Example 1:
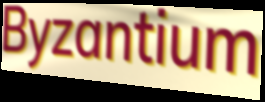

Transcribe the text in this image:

Byzantium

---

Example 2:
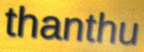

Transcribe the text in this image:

thanthu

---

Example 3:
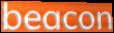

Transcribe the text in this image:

beacon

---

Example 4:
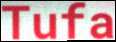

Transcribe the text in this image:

Tufa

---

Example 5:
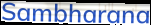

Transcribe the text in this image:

Sambharana